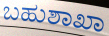
ಬಹುಶಾಖಾ